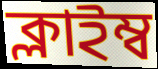
ক্লাইম্ব